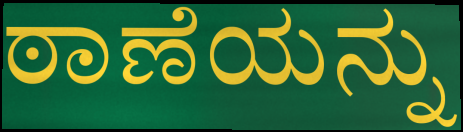
ಠಾಣೆಯನ್ನು